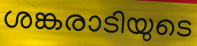
ശങ്കരാടിയുടെ